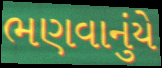
ભણવાનુંયે